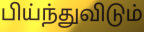
பிய்ந்துவிடும்